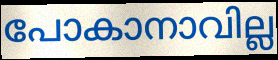
പോകാനാവില്ല